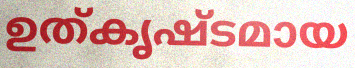
ഉത്കൃഷ്ടമായ